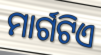
ମାର୍ଗଟିଏ